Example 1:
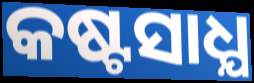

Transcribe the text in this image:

କଷ୍ଟସାଧ୍ଯ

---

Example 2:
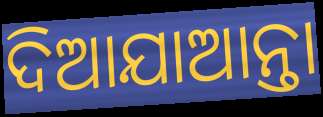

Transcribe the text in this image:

ଦିଆଯାଆନ୍ତା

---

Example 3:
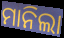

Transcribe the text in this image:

ମାନିଲା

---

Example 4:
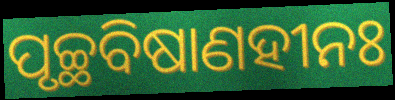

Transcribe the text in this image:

ପୃଚ୍ଛବିଷାଣହୀନଃ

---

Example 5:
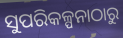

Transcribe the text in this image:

ସୁପରିକଳ୍ପନାଠାରୁ